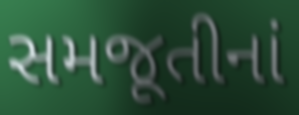
સમજૂતીનાં